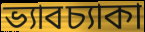
ভ্যাবচ্যাকা